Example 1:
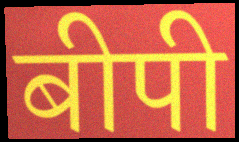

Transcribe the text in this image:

बीपी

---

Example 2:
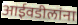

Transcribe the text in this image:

आईवडीलांना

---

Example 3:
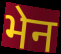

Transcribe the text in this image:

भेन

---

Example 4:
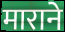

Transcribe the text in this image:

माराने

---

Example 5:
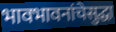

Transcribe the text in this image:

भावभावनांचेसुद्धा